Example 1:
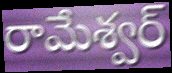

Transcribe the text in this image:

రామేశ్వర్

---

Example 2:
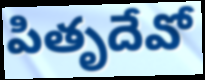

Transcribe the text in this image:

పితృదేవో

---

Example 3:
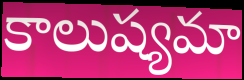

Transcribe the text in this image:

కాలుష్యమా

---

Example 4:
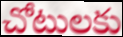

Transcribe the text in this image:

చోటులకు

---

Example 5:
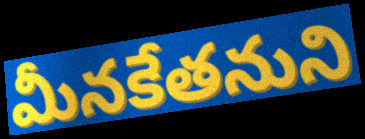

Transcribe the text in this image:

మీనకేతనుని